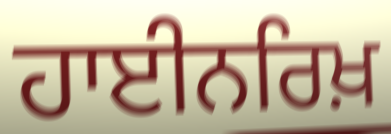
ਹਾਈਨਰਿਖ਼